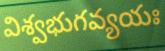
విశ్వభుగవ్యయః